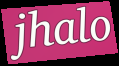
jhalo